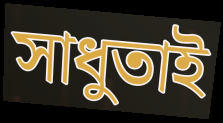
সাধুতাই